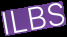
ILBS